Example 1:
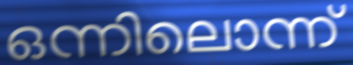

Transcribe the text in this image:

ഒന്നിലൊന്ന്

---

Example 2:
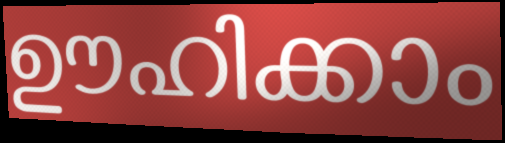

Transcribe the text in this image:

ഊഹിക്കാം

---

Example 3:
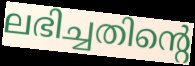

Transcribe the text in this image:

ലഭിച്ചതിന്റെ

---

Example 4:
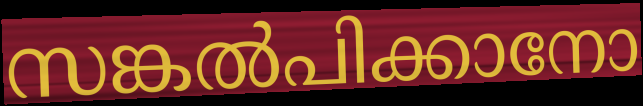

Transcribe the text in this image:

സങ്കൽപിക്കാനോ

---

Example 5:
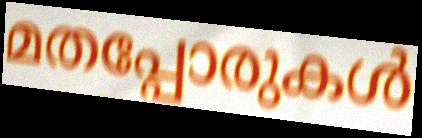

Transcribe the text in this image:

മതപ്പോരുകൾ